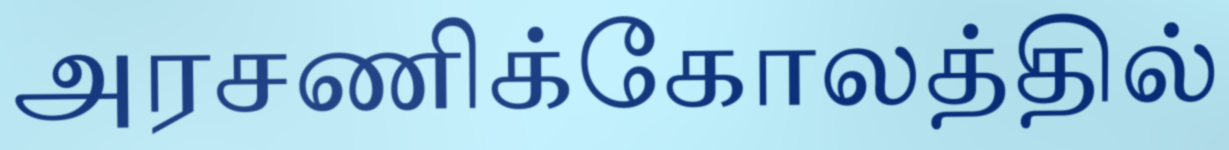
அரசணிக்கோலத்தில்